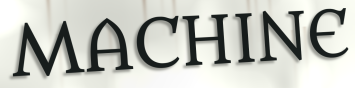
MACHINE